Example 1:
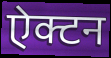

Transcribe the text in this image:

ऐक्टन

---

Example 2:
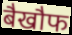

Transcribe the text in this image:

बैखौफ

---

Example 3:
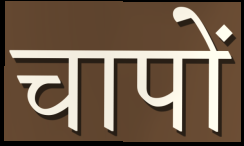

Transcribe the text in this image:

चापों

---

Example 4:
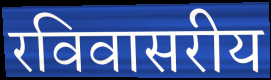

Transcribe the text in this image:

रविवासरीय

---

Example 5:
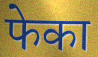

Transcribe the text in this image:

फेका